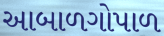
આબાળગોપાળ